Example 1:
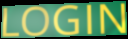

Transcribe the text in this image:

LOGIN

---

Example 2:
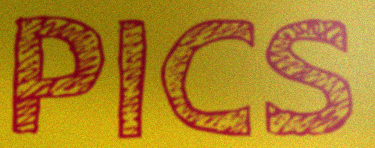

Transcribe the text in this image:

PICS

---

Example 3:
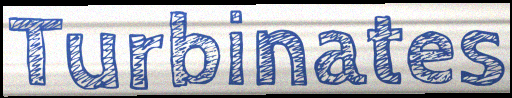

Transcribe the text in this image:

Turbinates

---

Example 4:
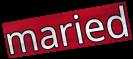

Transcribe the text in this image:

maried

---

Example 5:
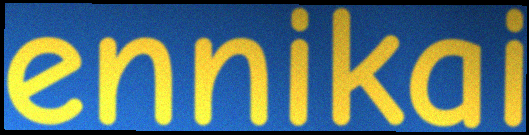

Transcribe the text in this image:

ennikai